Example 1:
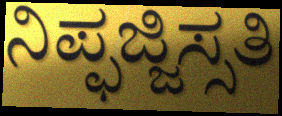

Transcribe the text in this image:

ನಿಪ್ಫಜ್ಜಿಸ್ಸತಿ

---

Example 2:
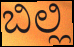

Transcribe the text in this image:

ಬಿಲ್ಲಿ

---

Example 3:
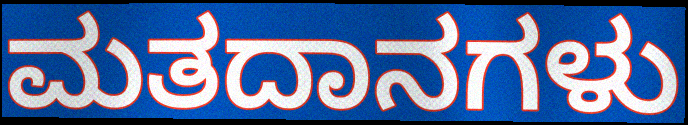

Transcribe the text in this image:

ಮತದಾನಗಳು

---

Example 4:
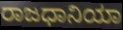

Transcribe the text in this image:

ರಾಜಧಾನಿಯಾ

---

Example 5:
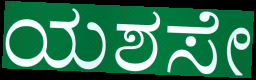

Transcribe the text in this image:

ಯಶಸೇ